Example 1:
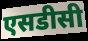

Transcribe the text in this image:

एसडीसी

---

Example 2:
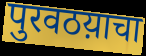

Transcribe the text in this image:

पुरवठय़ाचा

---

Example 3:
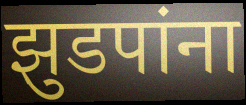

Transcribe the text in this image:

झुडपांना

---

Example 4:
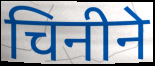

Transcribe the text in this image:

चिनीने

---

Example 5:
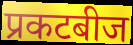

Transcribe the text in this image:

प्रकटबीज